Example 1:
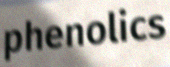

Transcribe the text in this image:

phenolics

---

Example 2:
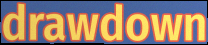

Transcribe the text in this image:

drawdown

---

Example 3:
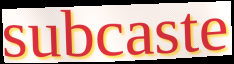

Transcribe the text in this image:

subcaste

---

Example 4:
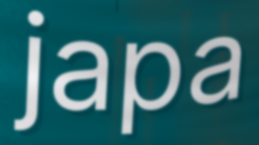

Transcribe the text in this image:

japa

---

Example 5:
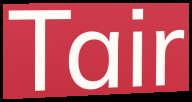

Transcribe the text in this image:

Tair